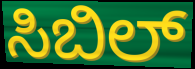
ಸಿಬಿಲ್